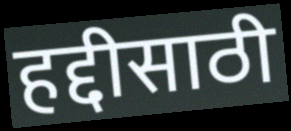
हद्दीसाठी